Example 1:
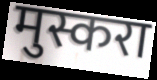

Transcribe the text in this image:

मुस्करा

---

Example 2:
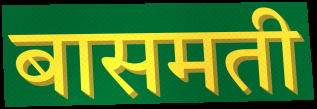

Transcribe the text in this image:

बासमती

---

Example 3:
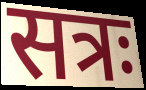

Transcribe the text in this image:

सत्रः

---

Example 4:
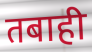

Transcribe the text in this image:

तबाही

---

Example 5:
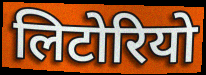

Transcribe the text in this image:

लिटोरियो